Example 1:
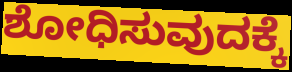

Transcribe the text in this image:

ಶೋಧಿಸುವುದಕ್ಕೆ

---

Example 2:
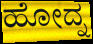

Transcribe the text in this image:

ಹೋದ್ನ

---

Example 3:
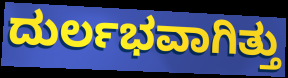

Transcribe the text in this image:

ದುರ್ಲಭವಾಗಿತ್ತು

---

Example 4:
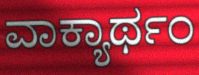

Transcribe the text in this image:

ವಾಕ್ಯಾರ್ಥಂ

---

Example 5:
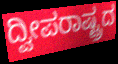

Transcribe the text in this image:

ದ್ವೀಪರಾಷ್ಟ್ರದ